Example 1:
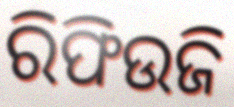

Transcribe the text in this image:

ରିଫିଉଜି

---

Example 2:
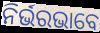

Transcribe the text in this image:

ନିର୍ଭରଭାବେ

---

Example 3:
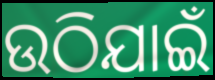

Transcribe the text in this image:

ଉଠିଯାଇଁ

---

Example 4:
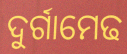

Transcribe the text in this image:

ଦୁର୍ଗାମେଢ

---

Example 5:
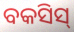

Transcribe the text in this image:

ବକସିସ୍